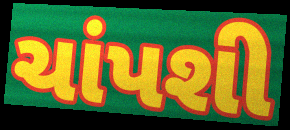
ચાંપશી